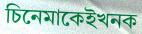
চিনেমাকেইখনক